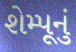
શેમ્પૂનું